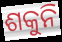
ଶକୁନି